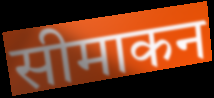
सीमाकन